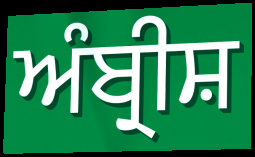
ਅੰਬ੍ਰੀਸ਼